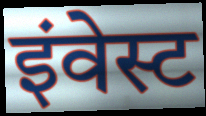
इंवेस्ट